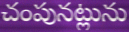
చంపునట్లును